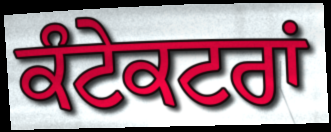
ਕੰਟੇਕਟਰਾਂ